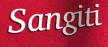
Sangiti